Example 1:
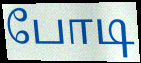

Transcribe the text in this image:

போடி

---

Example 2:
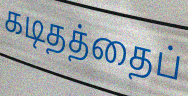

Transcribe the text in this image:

கடிதத்தைப்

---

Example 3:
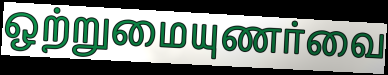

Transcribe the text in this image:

ஒற்றுமையுணர்வை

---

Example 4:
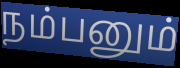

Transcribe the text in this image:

நம்பனும்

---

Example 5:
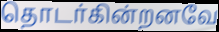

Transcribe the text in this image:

தொடர்கின்றனவே